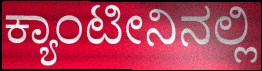
ಕ್ಯಾಂಟೀನಿನಲ್ಲಿ